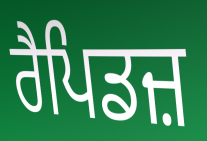
ਰੈਪਿਡਜ਼